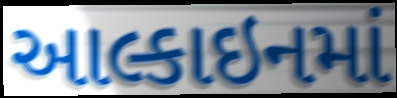
આલ્કાઇનમાં